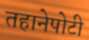
तहानेपोटी